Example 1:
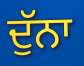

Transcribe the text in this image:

ਦੁੱਨਾ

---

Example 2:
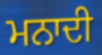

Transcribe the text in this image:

ਮਨਾਦੀ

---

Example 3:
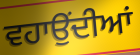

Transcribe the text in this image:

ਵਹਾਉਂਦੀਆਂ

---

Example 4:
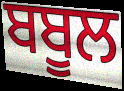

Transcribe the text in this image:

ਬਬੂਲ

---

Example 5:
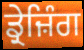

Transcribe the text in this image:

ਡ੍ਰੇਜ਼ਿੰਗ